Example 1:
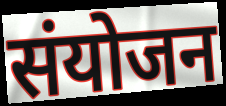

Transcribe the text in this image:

संयोजन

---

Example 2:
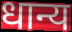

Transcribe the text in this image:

धान्य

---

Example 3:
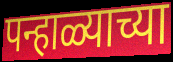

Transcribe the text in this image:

पन्हाळ्याच्या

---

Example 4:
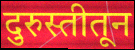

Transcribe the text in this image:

दुरुस्तीतून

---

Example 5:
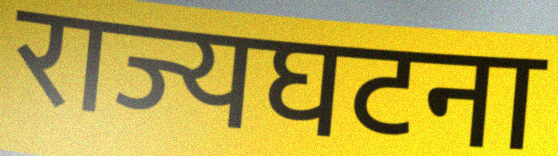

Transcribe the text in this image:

राज्यघटना